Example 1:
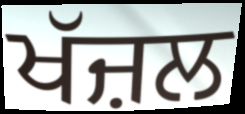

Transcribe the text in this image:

ਖੱਜ਼ਲ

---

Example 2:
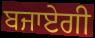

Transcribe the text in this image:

ਬਜਾਏਗੀ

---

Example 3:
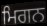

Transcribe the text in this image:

ਮਿਗਨ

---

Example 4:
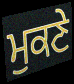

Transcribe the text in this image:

ਮੁਕਣੇ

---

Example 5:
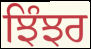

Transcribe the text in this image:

ਝਿੰਝਰ